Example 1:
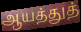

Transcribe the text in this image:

ஆயத்துத்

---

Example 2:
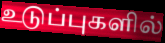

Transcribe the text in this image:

உடுப்புகளில்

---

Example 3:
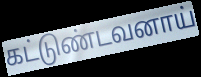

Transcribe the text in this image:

கட்டுண்டவனாய்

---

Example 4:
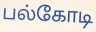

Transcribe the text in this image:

பல்கோடி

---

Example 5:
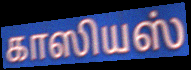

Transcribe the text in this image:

காஸியஸ்